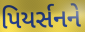
પિયર્સનને